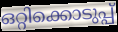
ഒറ്റിക്കൊടുപ്പ്